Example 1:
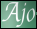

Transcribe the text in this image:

Ajo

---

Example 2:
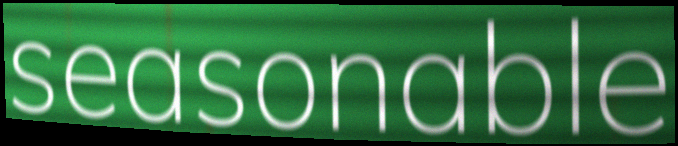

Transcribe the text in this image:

seasonable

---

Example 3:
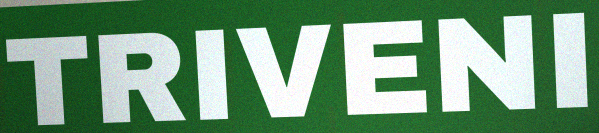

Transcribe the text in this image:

TRIVENI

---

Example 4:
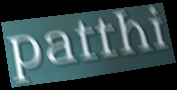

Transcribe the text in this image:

patthi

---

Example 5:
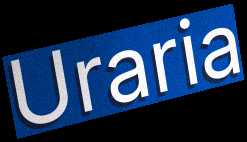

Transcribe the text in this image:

Uraria